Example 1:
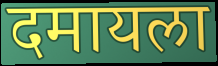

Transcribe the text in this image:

दमायला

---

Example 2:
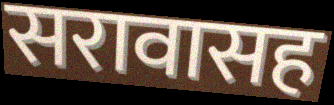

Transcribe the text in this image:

सरावासह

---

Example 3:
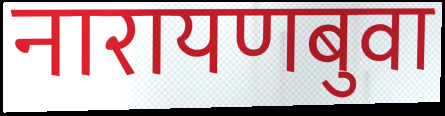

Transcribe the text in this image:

नारायणबुवा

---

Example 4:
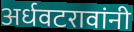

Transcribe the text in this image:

अर्धवटरावांनी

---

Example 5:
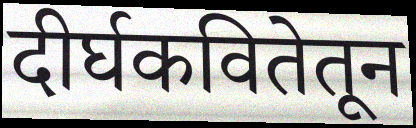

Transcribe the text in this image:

दीर्घकवितेतून